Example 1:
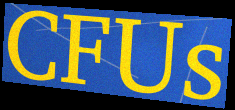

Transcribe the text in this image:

CFUs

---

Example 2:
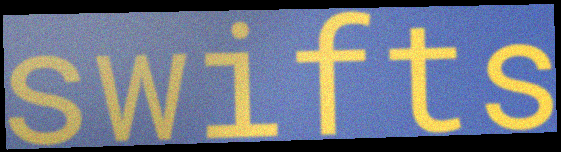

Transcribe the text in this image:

swifts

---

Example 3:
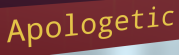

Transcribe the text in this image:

Apologetic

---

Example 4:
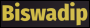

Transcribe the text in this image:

Biswadip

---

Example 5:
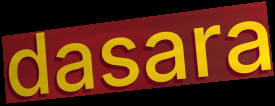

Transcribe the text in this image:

dasara